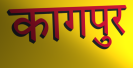
कागपुर